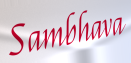
Sambhava